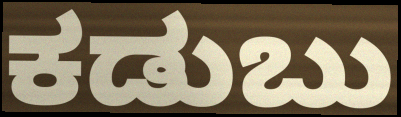
ಕಡುಬು